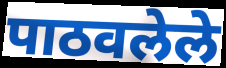
पाठवलेले